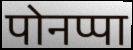
पोनप्पा